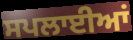
ਸਪਲਾਈਆਂ